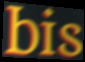
bis